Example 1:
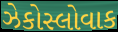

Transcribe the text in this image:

ઝેકોસ્લોવાક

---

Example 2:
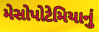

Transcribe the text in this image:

મેસોપોટેમિયાનું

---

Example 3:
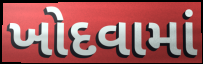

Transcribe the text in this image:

ખોદવામાં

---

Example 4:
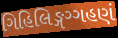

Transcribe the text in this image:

ગિહિલિઙ્ગગ્ગહણં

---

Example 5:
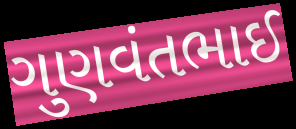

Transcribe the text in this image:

ગુણવંતભાઈ